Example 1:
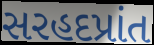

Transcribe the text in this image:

સરહદપ્રાંત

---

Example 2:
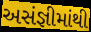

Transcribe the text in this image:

અસંજ્ઞીમાંથી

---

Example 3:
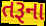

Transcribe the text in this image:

તરૂના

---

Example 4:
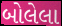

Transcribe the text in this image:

બોલેલા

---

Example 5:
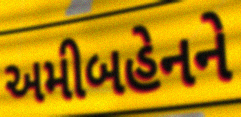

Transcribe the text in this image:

અમીબહેનને